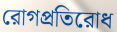
রোগপ্রতিরোধ